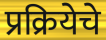
प्रक्रियेचे